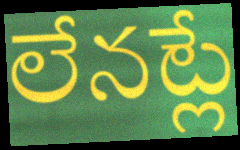
లేనట్లే